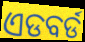
ଏଡବର୍ଡ